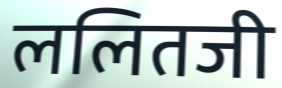
ललितजी